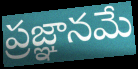
ప్రజ్ఞానమే